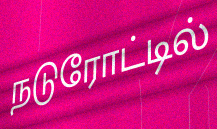
நடுரோட்டில்